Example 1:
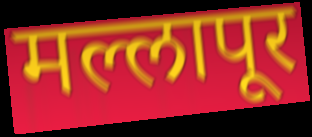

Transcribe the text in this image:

मल्लापूर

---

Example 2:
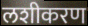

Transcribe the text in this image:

लशीकरण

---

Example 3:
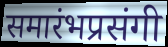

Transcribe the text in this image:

समारंभप्रसंगी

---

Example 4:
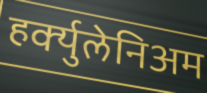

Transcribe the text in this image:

हर्क्युलेनिअम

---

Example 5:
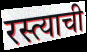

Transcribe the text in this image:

रस्त्याची